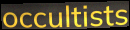
occultists